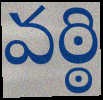
వఠ్ఠి